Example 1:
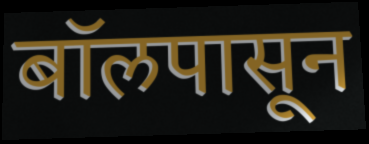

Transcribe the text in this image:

बॉलपासून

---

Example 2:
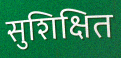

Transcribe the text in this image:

सुशिक्षित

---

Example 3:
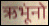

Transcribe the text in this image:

ऋभूंनो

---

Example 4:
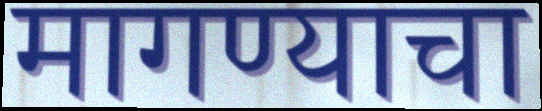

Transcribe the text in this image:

मागण्याचा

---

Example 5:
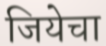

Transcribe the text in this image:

जियेचा